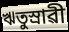
ঋতুস্ৰাৱী